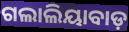
ଗଲାଲିୟାବାଡ଼